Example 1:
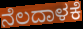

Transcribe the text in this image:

ನೆಲದಾಳಕೆ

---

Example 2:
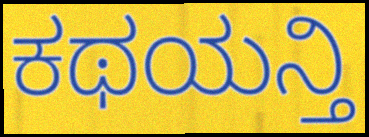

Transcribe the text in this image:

ಕಥಯನ್ತಿ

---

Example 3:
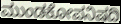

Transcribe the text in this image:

ಮುಂಡಕೋಪನಿಷದಿ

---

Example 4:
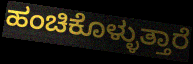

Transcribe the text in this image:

ಹಂಚಿಕೊಳ್ಳುತ್ತಾರೆ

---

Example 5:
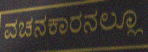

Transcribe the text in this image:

ವಚನಕಾರನಲ್ಲೂ